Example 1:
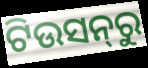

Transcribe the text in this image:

ଟିଉସନ୍‌ରୁ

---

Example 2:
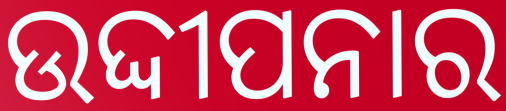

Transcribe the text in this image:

ଉଦ୍ଦୀପନାର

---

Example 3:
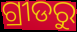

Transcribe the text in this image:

ଗ୍ରୀଡରୁ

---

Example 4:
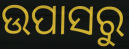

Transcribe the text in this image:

ଉପାସରୁ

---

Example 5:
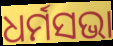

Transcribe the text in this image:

ଧର୍ମସଭା